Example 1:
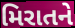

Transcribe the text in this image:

મિરાતને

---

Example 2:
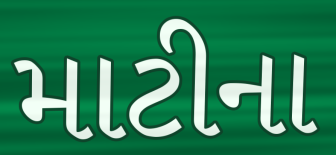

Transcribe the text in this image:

માટીના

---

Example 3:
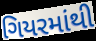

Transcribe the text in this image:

ગિયરમાંથી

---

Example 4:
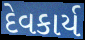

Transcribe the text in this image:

દેવકાર્ય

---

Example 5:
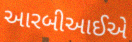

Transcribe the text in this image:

આરબીઆઈએ